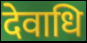
देवाधि